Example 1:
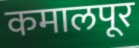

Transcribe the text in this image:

कमालपूर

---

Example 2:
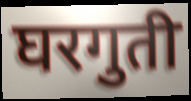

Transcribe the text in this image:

घरगुती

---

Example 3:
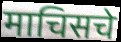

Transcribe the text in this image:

माचिसचे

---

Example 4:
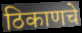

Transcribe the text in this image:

ठिकाणचे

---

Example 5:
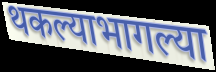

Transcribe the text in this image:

थकल्याभागल्या